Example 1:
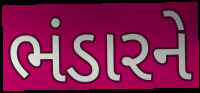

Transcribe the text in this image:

ભંડારને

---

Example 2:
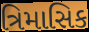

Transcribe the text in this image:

ત્રિમાસિક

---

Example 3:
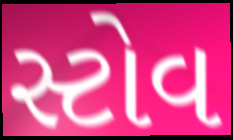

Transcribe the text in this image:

સ્ટોવ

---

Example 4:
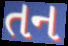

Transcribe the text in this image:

તન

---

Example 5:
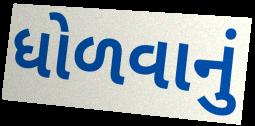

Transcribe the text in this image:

ધોળવાનું